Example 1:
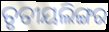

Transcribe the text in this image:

ତୃତୀୟଲିଙ୍ଗର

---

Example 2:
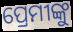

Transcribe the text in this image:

ପ୍ରେମୀଙ୍କୁ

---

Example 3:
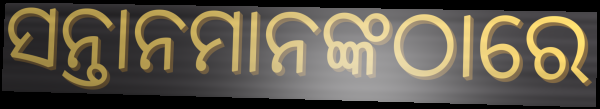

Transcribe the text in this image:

ସନ୍ତାନମାନଙ୍କଠାରେ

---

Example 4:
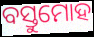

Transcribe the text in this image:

ବସ୍ତୁମୋହ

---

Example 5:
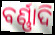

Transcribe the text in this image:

ବର୍ଣ୍ଣାଦି